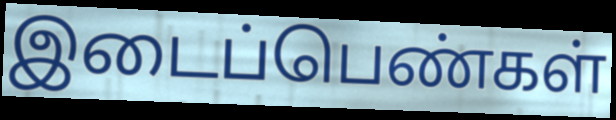
இடைப்பெண்கள்